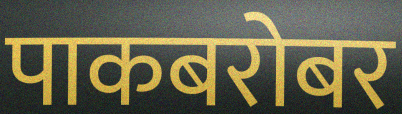
पाकबरोबर